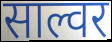
साल्वर